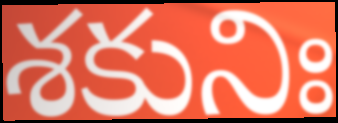
శకునిః